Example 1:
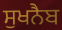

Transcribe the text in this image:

ਸੁਖਨੈਬ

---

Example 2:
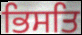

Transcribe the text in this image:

ਭਿਸਤਿ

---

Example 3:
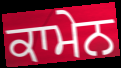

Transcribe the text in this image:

ਕਾਮੇਨ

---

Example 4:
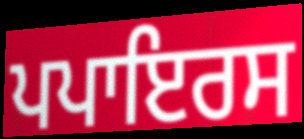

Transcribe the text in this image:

ਪਪਾਇਰਸ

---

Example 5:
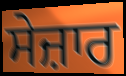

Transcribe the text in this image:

ਸੇਜ਼ਾਰ